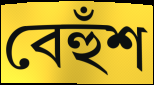
বেহুঁশ